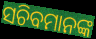
ସଚିବମାନଙ୍କ